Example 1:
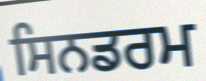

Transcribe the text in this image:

ਸਿਨਡਰਮ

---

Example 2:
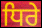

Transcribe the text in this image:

ਧਿਰੇ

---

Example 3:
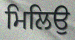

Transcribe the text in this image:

ਮਿਲਿਉ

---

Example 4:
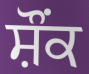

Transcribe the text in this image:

ਸ਼ੌਂਕ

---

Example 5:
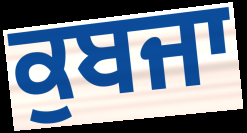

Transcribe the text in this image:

ਕੁਬਜਾ